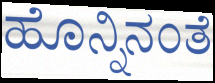
ಹೊನ್ನಿನಂತೆ